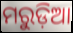
ମରୁଡ଼ିଆ